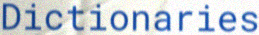
Dictionaries